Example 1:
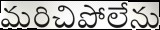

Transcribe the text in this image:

మరిచిపోలేను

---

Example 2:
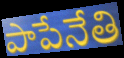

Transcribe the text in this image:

పాపేనేతి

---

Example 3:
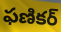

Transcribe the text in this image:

ఫణికర్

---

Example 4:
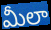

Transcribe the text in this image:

మీలా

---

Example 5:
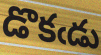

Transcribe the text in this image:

డొకఁడు